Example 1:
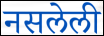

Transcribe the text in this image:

नसलेली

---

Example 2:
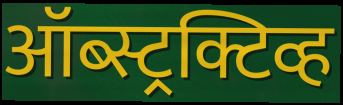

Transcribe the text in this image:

ऑब्स्ट्रक्टिव्ह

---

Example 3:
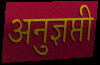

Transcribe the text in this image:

अनुज्ञप्ती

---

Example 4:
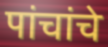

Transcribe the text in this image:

पांचांचे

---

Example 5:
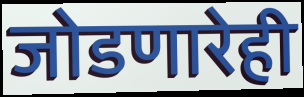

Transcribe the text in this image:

जोडणारेही